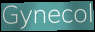
Gynecol